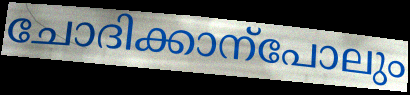
ചോദിക്കാന്പോലും